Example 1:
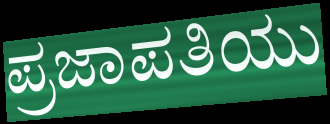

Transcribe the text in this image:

ಪ್ರಜಾಪತಿಯು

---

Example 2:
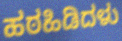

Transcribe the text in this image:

ಹಠಹಿಡಿದಳು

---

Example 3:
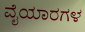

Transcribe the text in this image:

ವೈಯಾರಗಳ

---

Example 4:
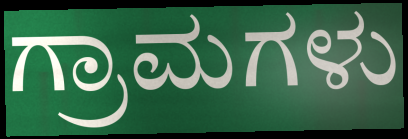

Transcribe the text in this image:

ಗ್ರಾಮಗಳು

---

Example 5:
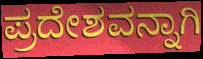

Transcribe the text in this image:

ಪ್ರದೇಶವನ್ನಾಗಿ